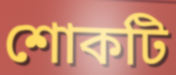
শোকটি